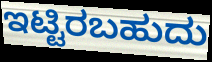
ಇಟ್ಟಿರಬಹುದು